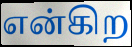
என்கிற